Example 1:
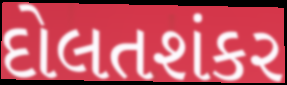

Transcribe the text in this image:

દોલતશંકર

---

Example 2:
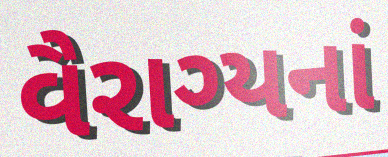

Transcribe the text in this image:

વૈરાગ્યનાં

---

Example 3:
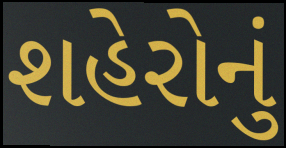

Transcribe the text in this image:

શહેરોનું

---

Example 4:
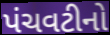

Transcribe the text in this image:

પંચવટીનો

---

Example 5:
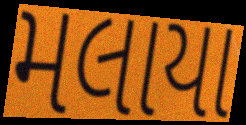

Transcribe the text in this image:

મલાયા